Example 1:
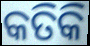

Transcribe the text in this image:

କତିକି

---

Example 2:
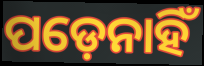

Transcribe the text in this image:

ପଡ଼େନାହିଁ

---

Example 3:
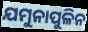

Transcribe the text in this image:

ଯମୁନାପୁଳିନ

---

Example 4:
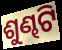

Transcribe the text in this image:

ଶୁଣ୍ଢଟି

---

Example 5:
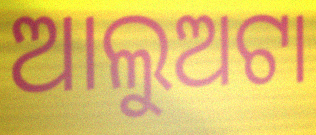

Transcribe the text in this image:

ଆଲୁଅଟା